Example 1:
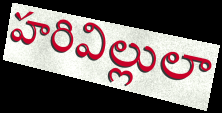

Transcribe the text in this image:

హరివిల్లులా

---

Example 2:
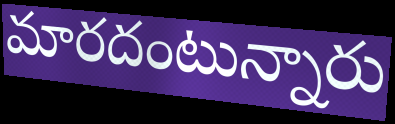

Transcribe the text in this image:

మారదంటున్నారు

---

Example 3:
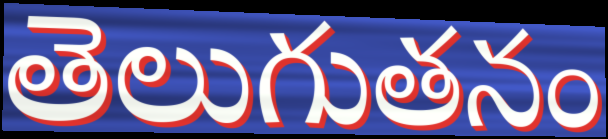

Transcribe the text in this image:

తెలుగుతనం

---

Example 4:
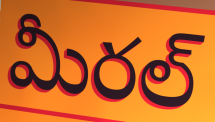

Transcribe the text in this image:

మీరల్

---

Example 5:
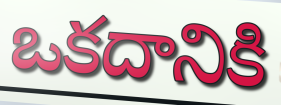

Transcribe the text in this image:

ఒకదానికి